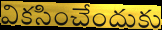
వికసించేందుకు